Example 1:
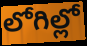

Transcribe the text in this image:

లోగిల్లో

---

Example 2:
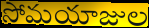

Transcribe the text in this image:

సోమయాజుల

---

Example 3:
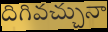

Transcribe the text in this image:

దిగివచ్చునా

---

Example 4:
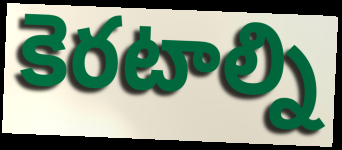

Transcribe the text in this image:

కెరటాల్ని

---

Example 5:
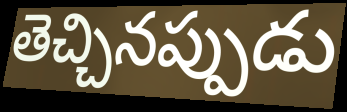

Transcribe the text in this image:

తెచ్చినప్పుడు